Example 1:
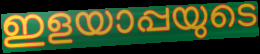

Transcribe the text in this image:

ഇളയാപ്പയുടെ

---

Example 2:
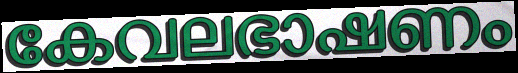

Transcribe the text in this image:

കേവലഭാഷണം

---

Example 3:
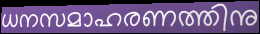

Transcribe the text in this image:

ധനസമാഹരണത്തിനു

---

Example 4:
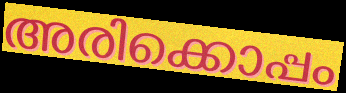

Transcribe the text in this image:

അരിക്കൊപ്പം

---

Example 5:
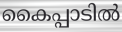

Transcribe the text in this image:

കൈപ്പാടിൽ